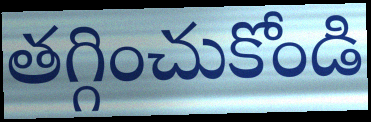
తగ్గించుకోండి